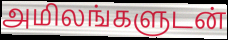
அமிலங்களுடன்